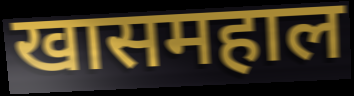
खासमहाल